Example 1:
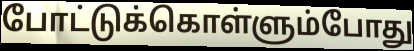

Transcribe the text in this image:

போட்டுக்கொள்ளும்போது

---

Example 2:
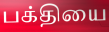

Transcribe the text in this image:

பக்தியை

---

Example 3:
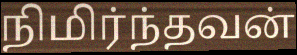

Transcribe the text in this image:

நிமிர்ந்தவன்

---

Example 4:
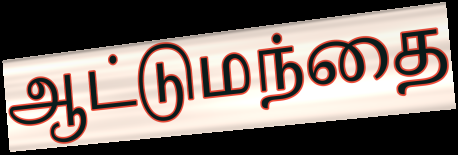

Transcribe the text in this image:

ஆட்டுமந்தை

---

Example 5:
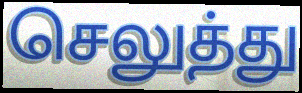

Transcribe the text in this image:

செலுத்து